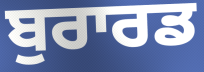
ਬੁਰਾਰਡ